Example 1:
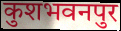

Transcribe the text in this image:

कुशभवनपुर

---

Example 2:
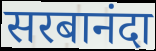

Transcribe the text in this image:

सरबानंदा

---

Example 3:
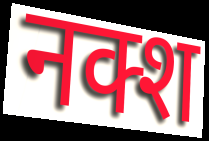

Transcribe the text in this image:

नक्श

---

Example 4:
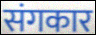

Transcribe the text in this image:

संगकार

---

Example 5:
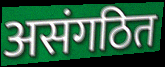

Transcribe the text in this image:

असंगठित